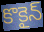
కొకైన్